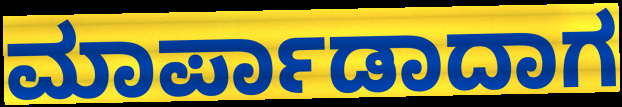
ಮಾರ್ಪಾಡಾದಾಗ